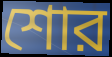
শোর